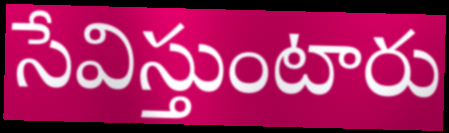
సేవిస్తుంటారు